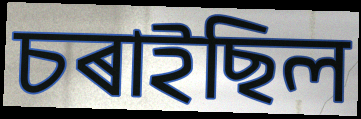
চৰাইছিল